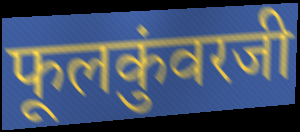
फूलकुंवरजी